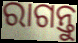
ରାଗନ୍ତୁ